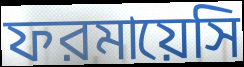
ফরমায়েসি